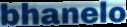
bhanelo